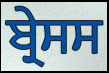
ਬ੍ਰੇਸਸ